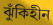
ঝুঁকিহীন